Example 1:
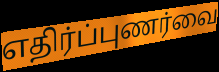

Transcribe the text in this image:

எதிர்ப்புணர்வை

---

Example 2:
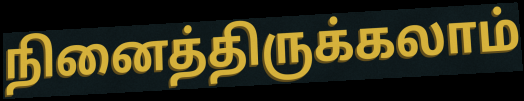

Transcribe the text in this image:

நினைத்திருக்கலாம்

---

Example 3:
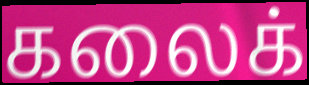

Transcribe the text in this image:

கலைக்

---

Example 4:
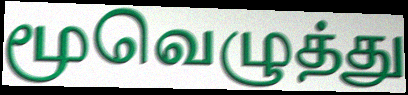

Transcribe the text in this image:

மூவெழுத்து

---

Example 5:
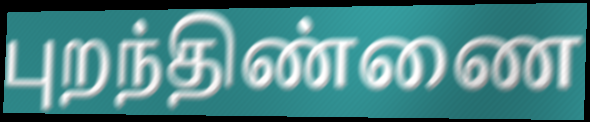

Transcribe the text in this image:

புறந்திண்ணை